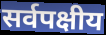
सर्वपक्षीय